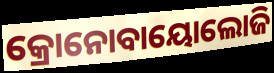
କ୍ରୋନୋବାୟୋଲୋଜି